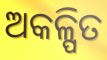
ଅକଳ୍ପିତ